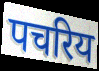
पचरिय